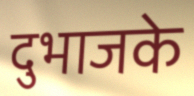
दुभाजके